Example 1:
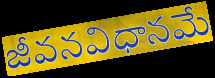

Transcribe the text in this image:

జీవనవిధానమే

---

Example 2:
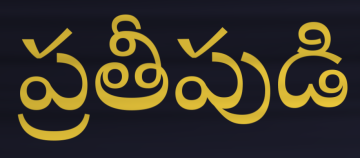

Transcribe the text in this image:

ప్రతీపుడి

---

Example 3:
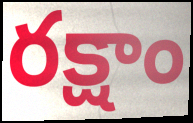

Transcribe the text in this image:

రక్షాం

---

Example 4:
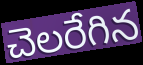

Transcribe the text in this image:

చెలరేగిన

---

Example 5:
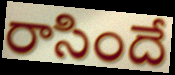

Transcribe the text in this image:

రాసిందే